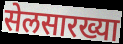
सेलसारख्या